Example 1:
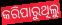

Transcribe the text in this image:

କରିପାରୁଥିଲୁ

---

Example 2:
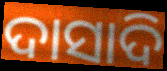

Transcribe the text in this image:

ଦାସାଦି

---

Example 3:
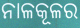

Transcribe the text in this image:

ନାଳକୂଳର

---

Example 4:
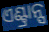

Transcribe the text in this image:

ଏଣ୍ଟ୍ରାନ୍ସ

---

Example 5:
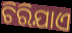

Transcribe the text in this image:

ଚିରିଯାଏ